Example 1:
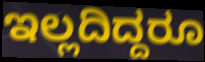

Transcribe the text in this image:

ಇಲ್ಲದಿದ್ದರೂ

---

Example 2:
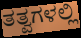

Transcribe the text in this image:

ತತ್ವಗಳಲ್ಲಿ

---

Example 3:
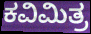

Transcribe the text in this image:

ಕವಿಮಿತ್ರ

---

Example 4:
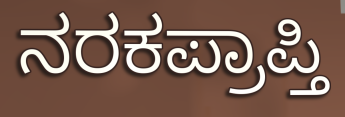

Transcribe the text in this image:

ನರಕಪ್ರಾಪ್ತಿ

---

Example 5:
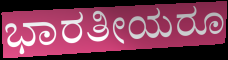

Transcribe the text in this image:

ಭಾರತೀಯರೂ